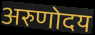
अरुणोदय